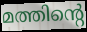
മത്തിന്റെ